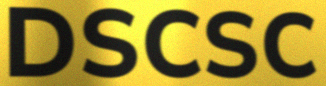
DSCSC